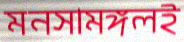
মনসামঙ্গলই